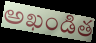
అఖండిత